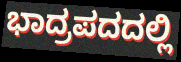
ಭಾದ್ರಪದದಲ್ಲಿ